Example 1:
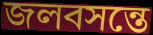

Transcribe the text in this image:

জলবসন্তে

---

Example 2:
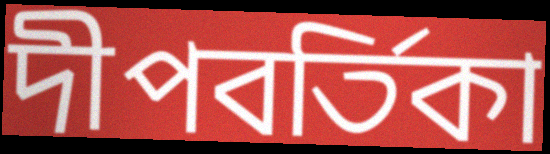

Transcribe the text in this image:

দীপবর্তিকা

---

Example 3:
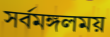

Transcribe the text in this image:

সর্বমঙ্গলময়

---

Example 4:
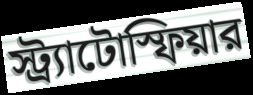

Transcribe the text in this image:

স্ট্র্যাটোস্ফিয়ার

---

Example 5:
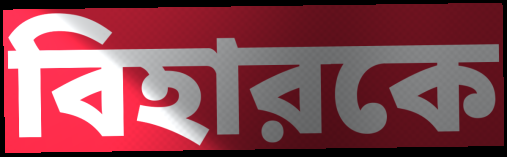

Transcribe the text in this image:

বিহারকে